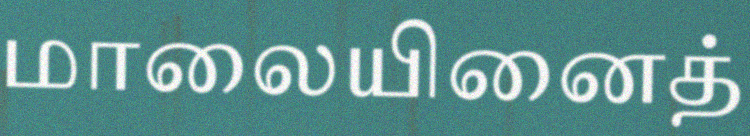
மாலையினைத்